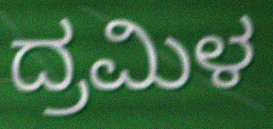
ದ್ರಮಿಳ